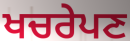
ਖਚਰੇਪਣ